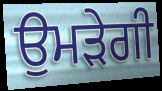
ਉਮੜੇਗੀ